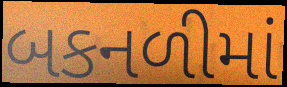
બકનળીમાં